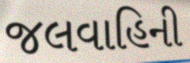
જલવાહિની